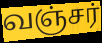
வஞ்சர்